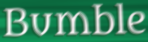
Bumble